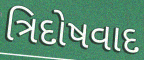
ત્રિદોષવાદ